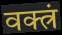
वक्त्रं